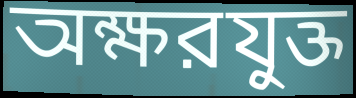
অক্ষরযুক্ত